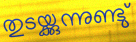
തുടയ്ക്കുന്നുണ്ടു്